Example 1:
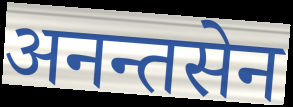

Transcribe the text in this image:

अनन्तसेन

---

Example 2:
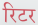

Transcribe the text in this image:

रिटर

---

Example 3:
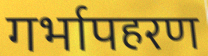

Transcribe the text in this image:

गर्भापहरण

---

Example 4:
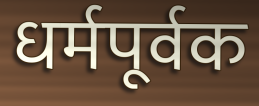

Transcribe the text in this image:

धर्मपूर्वक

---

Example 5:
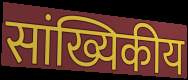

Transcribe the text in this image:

सांख्यिकीय